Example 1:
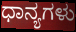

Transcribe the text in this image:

ಧಾನ್ಯಗಳು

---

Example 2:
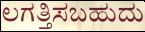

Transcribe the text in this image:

ಲಗತ್ತಿಸಬಹುದು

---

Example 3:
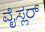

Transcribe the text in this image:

ವೈಸ್ಲರ್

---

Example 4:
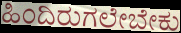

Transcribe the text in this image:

ಹಿಂದಿರುಗಲೇಬೇಕು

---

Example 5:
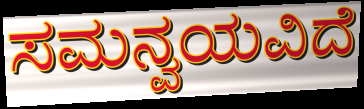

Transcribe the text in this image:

ಸಮನ್ವಯವಿದೆ